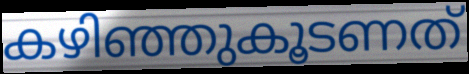
കഴിഞ്ഞുകൂടണത്